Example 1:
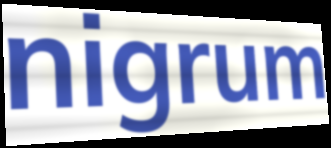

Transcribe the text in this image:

nigrum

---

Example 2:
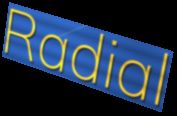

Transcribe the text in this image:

Radial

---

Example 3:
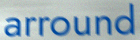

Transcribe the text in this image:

arround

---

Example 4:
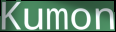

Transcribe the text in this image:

Kumon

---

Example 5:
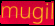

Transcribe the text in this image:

mugil